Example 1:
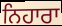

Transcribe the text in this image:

ਨਿਹਾਰਾ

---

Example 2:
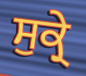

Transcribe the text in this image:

ਸੁਕ੍ਰੇ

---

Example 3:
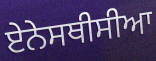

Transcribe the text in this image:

ਏਨੇਸਥੀਸੀਆ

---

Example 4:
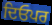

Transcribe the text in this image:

ਦਿਓਪਰ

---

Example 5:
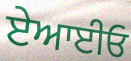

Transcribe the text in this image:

ਏਆਈਓ